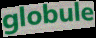
globule